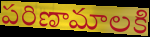
పరిణామాలకి